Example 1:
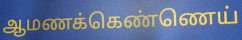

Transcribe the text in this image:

ஆமணக்கெண்ணெய்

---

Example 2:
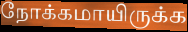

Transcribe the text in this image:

நோக்கமாயிருக்க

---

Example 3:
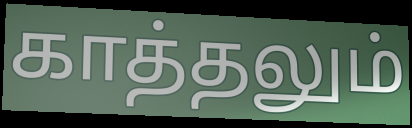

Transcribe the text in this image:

காத்தலும்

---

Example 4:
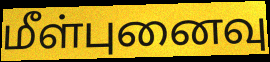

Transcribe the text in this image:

மீள்புனைவு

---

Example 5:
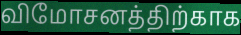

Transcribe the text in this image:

விமோசனத்திற்காக